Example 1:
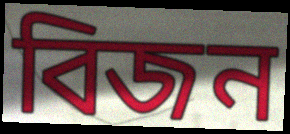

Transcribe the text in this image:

বিজন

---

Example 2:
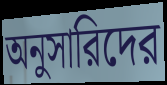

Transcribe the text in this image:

অনুসারিদের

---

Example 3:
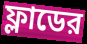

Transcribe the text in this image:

ফ্লাডের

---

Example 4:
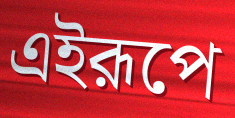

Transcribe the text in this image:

এইরূপে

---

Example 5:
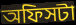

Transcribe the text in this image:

অফিসটা